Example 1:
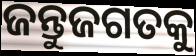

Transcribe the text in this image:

ଜନ୍ତୁଜଗତକୁ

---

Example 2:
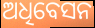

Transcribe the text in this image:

ଅଧିବେସନ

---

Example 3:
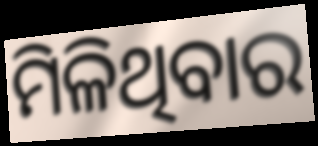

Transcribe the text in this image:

ମିଳିଥିବାର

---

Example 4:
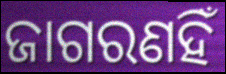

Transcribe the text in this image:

ଜାଗରଣହିଁ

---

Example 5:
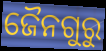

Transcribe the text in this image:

ଜୈନଗୁରୁ